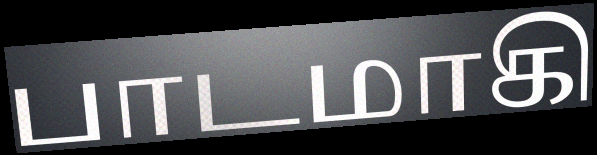
பாடமாகி